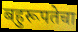
बहुरूपतेचा